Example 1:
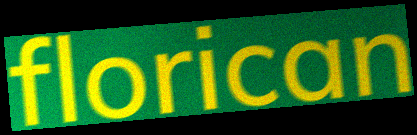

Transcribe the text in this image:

florican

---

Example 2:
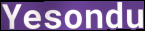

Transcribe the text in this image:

Yesondu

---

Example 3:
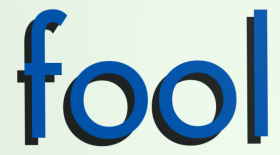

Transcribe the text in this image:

fool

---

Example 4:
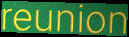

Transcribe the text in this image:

reunion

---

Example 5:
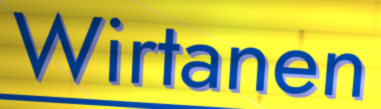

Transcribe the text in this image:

Wirtanen